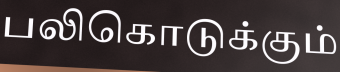
பலிகொடுக்கும்